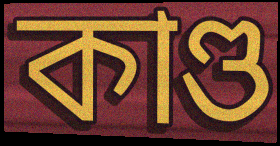
কাণ্ড